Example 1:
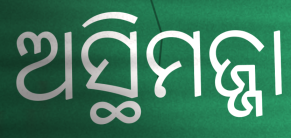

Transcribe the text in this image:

ଅସ୍ଥିମଜ୍ଜା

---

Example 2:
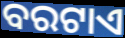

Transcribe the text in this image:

ବରଟାଏ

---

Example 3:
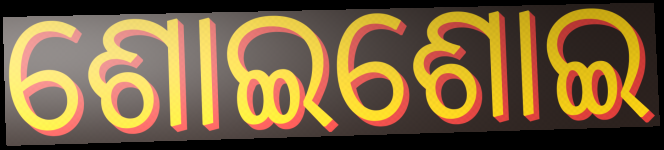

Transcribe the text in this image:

ଶୋଇଶୋଇ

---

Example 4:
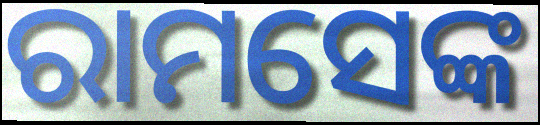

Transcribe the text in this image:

ରାମସେଙ୍କ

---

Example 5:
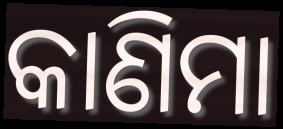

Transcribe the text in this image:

କାଣିମା